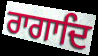
ਰਾਗਾਦਿ